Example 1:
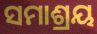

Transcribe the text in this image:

ସମାଶ୍ରୟ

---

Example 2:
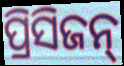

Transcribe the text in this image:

ପ୍ରିସିଜନ୍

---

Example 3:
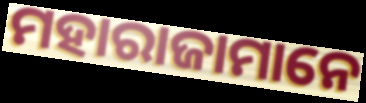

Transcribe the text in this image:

ମହାରାଜାମାନେ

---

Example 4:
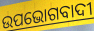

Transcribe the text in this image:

ଉପଭୋଗବାଦୀ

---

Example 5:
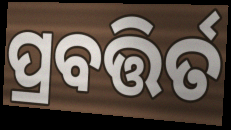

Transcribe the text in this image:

ପ୍ରବତ୍ତିର୍ତ